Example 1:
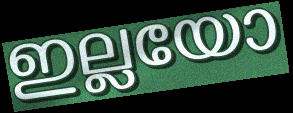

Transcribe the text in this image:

ഇല്ലയോ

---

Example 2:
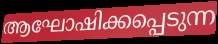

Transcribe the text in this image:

ആഘോഷിക്കപ്പെടുന്ന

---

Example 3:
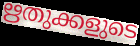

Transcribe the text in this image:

ഋതുക്കളുടെ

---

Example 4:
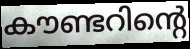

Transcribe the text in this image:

കൗണ്ടറിന്റെ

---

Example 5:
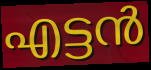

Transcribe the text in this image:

എട്ടൻ